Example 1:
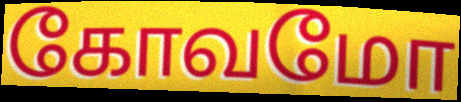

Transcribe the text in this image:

கோவமோ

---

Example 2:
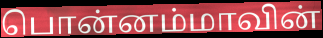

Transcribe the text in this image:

பொன்னம்மாவின்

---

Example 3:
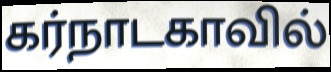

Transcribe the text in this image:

கர்நாடகாவில்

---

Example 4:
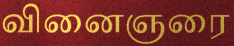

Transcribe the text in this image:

வினைஞரை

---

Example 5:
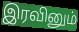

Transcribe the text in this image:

இரவினும்